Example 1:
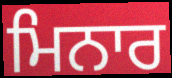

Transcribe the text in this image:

ਮਿਨਾਰ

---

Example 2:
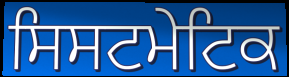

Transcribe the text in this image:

ਸਿਸਟਮੇਟਿਕ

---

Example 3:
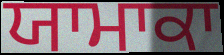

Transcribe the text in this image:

ਯਾਮਾਕਾ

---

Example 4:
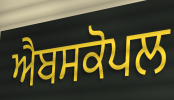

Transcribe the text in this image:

ਐਬਸਕੋਪਲ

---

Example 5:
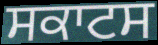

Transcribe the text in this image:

ਸਕਾਟਸ